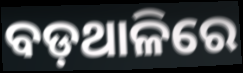
ବଡ଼ଥାଳିରେ